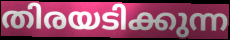
തിരയടിക്കുന്ന